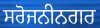
ਸਰੋਜਨੀਨਗਰ